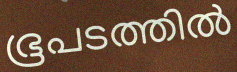
ഭൂപടത്തിൽ